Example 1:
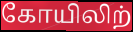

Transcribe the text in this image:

கோயிலிற்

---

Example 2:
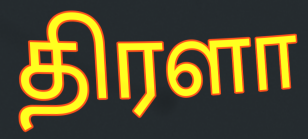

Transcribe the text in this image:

திரளா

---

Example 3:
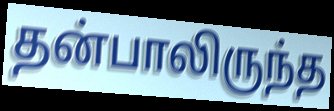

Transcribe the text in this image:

தன்பாலிருந்த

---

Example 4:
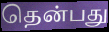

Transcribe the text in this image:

தென்பது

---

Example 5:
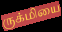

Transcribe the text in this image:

ருக்மியை